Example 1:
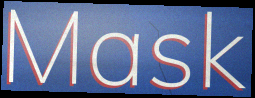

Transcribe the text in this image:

Mask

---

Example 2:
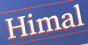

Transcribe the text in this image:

Himal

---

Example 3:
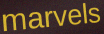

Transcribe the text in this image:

marvels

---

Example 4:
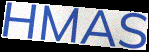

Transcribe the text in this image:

HMAS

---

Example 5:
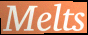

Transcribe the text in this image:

Melts